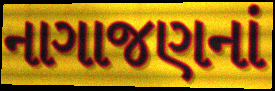
નાગાજણનાં